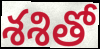
శశితో